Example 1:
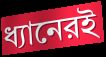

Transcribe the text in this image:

ধ্যানেরই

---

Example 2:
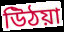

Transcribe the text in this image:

উিঠয়া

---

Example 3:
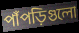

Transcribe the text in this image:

পাঁপড়িগুলো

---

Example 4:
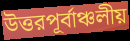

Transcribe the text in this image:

উত্তরপূর্বাঞ্চলীয়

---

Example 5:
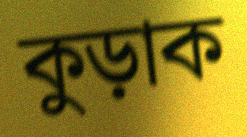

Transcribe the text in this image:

কুড়াক